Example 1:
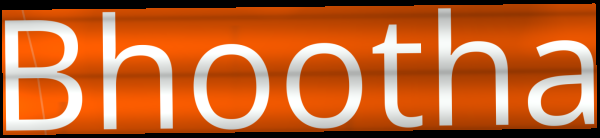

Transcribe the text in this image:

Bhootha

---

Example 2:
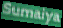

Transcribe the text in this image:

Sumaiya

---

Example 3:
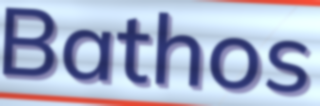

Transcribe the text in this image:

Bathos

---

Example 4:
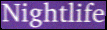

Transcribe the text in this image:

Nightlife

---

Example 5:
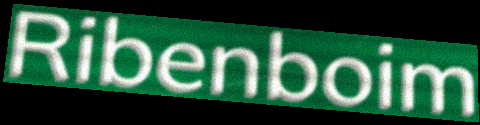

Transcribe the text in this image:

Ribenboim